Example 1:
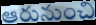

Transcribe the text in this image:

ఆరునుంచి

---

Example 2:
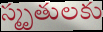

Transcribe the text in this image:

స్మృతులకు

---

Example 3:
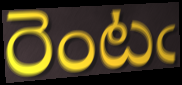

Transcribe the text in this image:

రెంటఁ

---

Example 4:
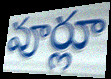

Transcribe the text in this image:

వూర్లూ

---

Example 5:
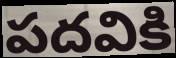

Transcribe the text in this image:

పదవికి